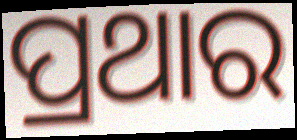
ପ୍ରଥାର